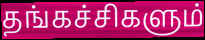
தங்கச்சிகளும்